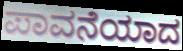
ಪಾವನೆಯಾದ